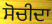
ਸੋਚੀਦਾ